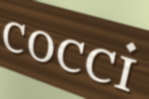
cocci